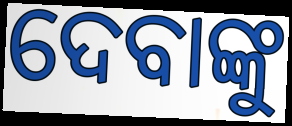
ଦେବାଙ୍କୁ